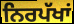
ਨਿਰਪੱਖਾਂ